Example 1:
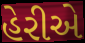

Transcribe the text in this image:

હેરીએ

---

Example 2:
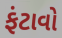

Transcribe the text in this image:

ફંટાવો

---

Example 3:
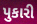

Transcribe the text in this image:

પુકારી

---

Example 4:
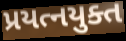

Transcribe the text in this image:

પ્રયત્નયુક્ત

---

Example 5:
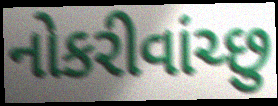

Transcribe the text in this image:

નોકરીવાંચ્છુ